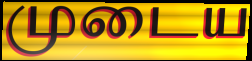
முடைய